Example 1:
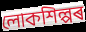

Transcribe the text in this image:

লোকশিল্পৰ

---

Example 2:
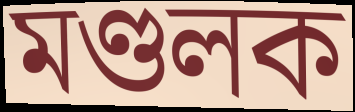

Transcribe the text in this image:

মণ্ডলক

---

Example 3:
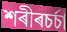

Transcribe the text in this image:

শৰীৰচৰ্চা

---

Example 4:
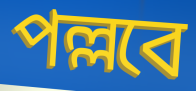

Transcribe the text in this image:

পল্লবে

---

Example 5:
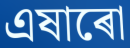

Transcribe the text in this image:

এষাৰো